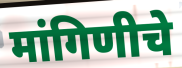
मांगिणीचे